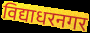
विद्याधरनगर